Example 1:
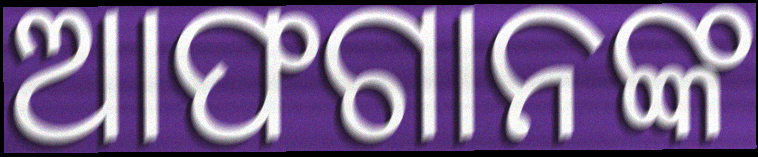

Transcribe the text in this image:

ଆଫଗାନଙ୍କ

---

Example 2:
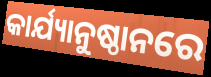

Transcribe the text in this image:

କାର୍ଯ୍ୟାନୁଷ୍ଠାନରେ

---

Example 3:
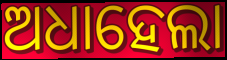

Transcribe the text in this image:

ଅଧାହେଲା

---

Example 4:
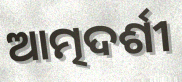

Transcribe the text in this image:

ଆତ୍ମଦର୍ଶୀ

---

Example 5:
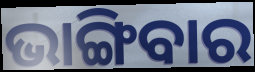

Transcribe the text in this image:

ଭାଙ୍ଗିବାର